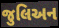
જુલિઅન